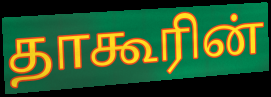
தாகூரின்